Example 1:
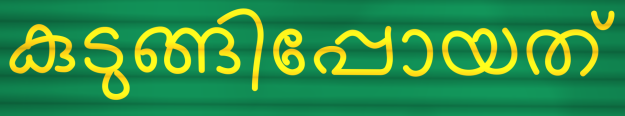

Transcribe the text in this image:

കുടുങ്ങിപ്പോയത്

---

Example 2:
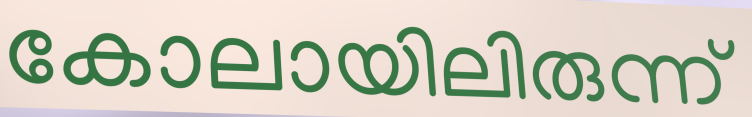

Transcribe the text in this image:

കോലായിലിരുന്ന്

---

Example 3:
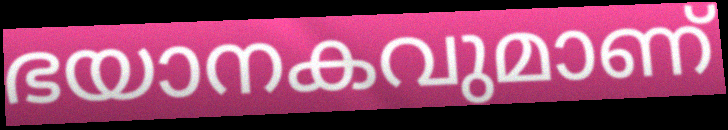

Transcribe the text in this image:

ഭയാനകവുമാണ്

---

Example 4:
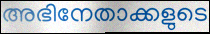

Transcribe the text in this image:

അഭിനേതാക്കളുടെ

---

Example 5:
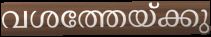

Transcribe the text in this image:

വശത്തേയ്ക്കു